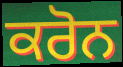
ਕਰੋਨ